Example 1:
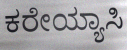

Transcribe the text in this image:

ಕರೇಯ್ಯಾಸಿ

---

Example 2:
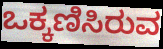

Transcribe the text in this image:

ಒಕ್ಕಣಿಸಿರುವ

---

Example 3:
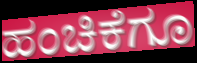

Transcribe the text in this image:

ಹಂಚಿಕೆಗೂ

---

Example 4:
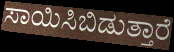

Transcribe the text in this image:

ಸಾಯಿಸಿಬಿಡುತ್ತಾರೆ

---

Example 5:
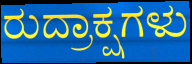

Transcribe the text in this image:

ರುದ್ರಾಕ್ಷಗಳು